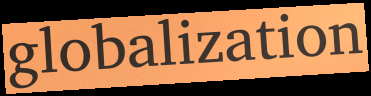
globalization